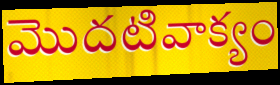
మొదటివాక్యం